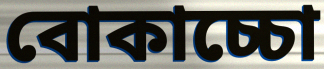
বোকাচ্চো